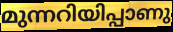
മുന്നറിയിപ്പാണു